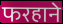
फरहाने